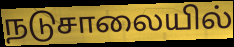
நடுசாலையில்